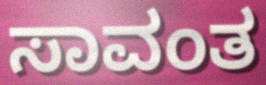
ಸಾವಂತ